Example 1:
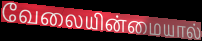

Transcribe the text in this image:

வேலையின்மையால்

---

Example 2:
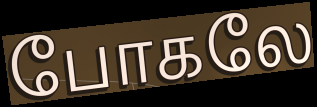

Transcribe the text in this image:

போகலே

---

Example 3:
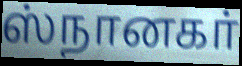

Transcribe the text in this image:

ஸ்நானகர்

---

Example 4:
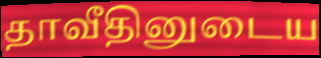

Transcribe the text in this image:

தாவீதினுடைய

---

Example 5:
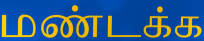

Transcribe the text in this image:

மண்டக்க